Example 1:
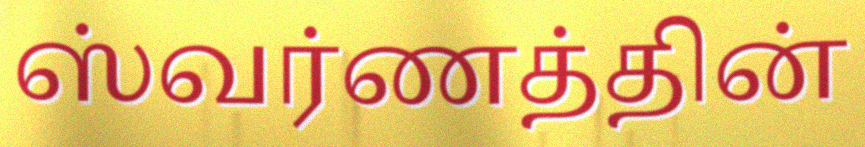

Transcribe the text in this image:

ஸ்வர்ணத்தின்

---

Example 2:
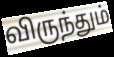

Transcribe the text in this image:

விருந்தும்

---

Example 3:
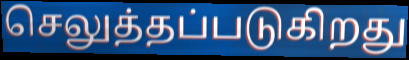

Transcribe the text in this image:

செலுத்தப்படுகிறது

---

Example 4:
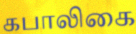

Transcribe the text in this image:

கபாலிகை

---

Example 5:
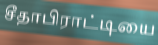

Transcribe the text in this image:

சீதாபிராட்டியை